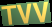
TVV